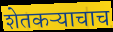
शेतकऱ्याचाच